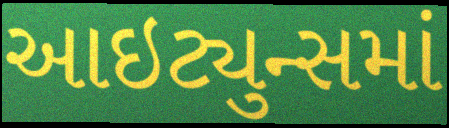
આઇટ્યુન્સમાં